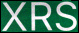
XRS